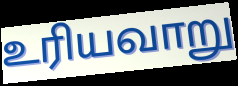
உரியவாறு